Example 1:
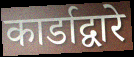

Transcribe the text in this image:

कार्डाद्वारे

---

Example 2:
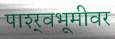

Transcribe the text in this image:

पाश्र्वभूमीवर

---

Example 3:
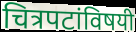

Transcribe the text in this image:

चित्रपटांविषयी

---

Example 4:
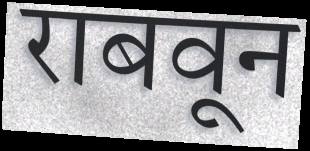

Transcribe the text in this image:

राबवून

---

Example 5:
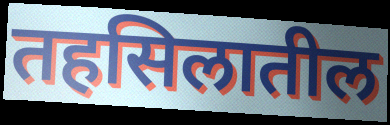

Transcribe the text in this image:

तहसिलातील